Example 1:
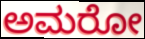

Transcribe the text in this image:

ಅಮರೋ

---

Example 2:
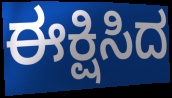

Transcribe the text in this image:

ಈಕ್ಷಿಸಿದ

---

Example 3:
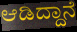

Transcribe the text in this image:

ಆಡಿದ್ದಾನೆ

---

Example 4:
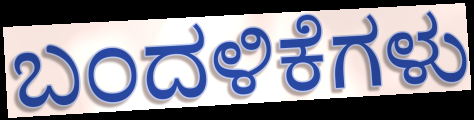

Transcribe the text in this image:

ಬಂದಳಿಕೆಗಳು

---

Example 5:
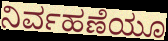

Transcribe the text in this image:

ನಿರ್ವಹಣೆಯೂ